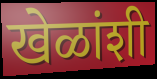
खेळांशी